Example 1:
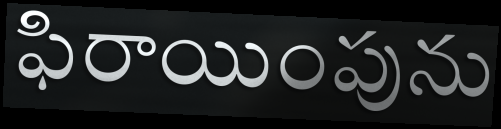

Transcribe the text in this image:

ఫిరాయింపును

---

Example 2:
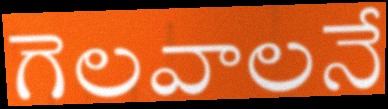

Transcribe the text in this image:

గెలవాలనే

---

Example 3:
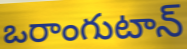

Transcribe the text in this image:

ఒరాంగుటాన్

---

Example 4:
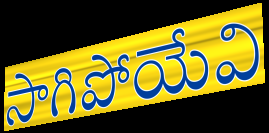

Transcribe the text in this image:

సాగిపోయేవి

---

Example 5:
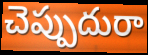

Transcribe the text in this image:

చెప్పుదురా